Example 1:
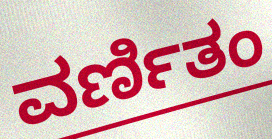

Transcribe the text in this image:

ವರ್ಣಿತಂ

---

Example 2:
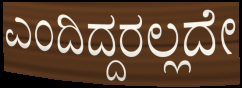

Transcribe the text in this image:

ಎಂದಿದ್ದರಲ್ಲದೇ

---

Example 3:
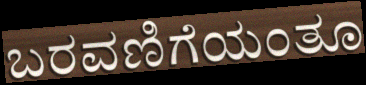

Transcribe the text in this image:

ಬರವಣಿಗೆಯಂತೂ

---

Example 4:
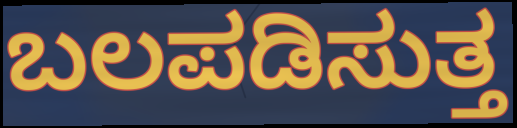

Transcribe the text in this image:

ಬಲಪಡಿಸುತ್ತ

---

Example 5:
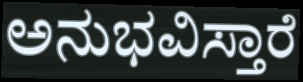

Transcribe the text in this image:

ಅನುಭವಿಸ್ತಾರೆ